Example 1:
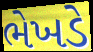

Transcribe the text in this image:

ભેખડે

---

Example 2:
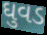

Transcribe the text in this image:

ઘુવડ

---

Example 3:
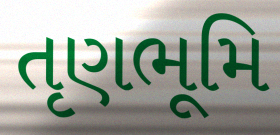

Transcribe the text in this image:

તૃણભૂમિ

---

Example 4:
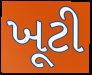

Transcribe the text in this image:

ખૂટી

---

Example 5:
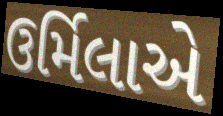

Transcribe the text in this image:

ઉર્મિલાએ